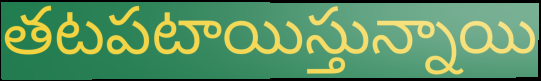
తటపటాయిస్తున్నాయి